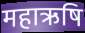
महाऋषि